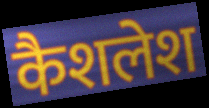
कैशलेश